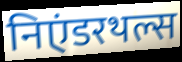
निएंडरथल्स